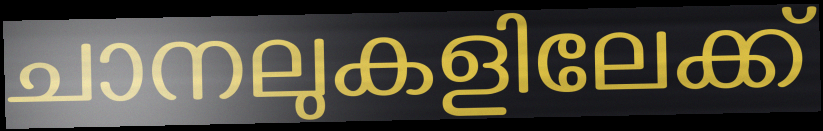
ചാനലുകളിലേക്ക്